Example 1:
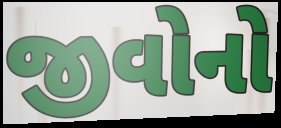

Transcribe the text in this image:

જીવોનો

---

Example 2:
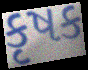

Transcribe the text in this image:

કૃષક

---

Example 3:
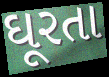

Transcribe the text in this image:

ઘૂરતા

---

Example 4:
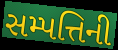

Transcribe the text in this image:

સમ્પત્તિની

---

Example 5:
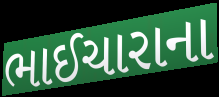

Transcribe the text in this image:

ભાઈચારાના